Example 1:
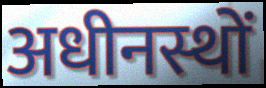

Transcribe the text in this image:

अधीनस्थों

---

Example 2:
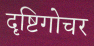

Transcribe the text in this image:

दृष्टिगोचर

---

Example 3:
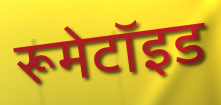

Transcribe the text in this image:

रूमेटॉइड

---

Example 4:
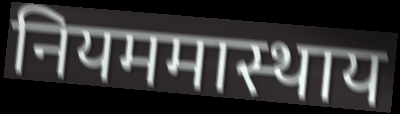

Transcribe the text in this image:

नियममास्थाय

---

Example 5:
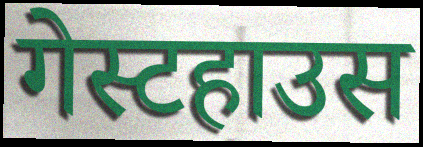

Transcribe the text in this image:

गेस्टहाउस